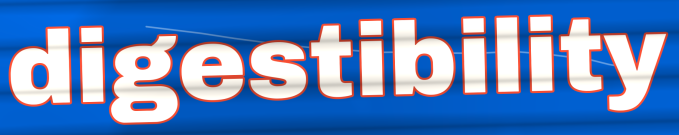
digestibility